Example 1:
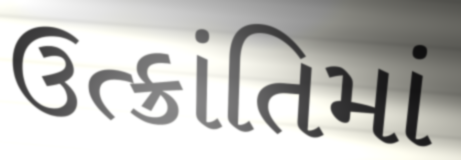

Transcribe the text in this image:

ઉત્ક્રાંતિમાં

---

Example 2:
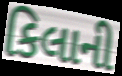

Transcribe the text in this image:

કિલાની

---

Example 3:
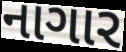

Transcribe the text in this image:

નાગાર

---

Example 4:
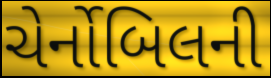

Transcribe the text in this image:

ચેર્નોબિલની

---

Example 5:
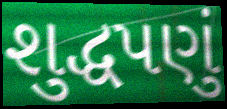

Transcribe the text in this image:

શુદ્ધપણું